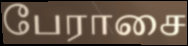
பேராசை